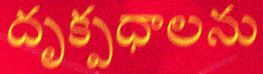
దృక్పధాలను